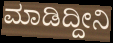
ಮಾಡಿದ್ದೀನಿ